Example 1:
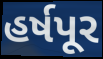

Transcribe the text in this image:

હર્ષપૂર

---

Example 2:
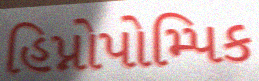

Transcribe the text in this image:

હિપ્નોપોમ્પિક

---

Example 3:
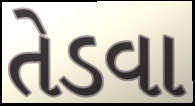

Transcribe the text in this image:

તેડવા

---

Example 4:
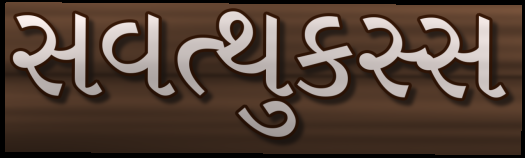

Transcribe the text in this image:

સવત્થુકસ્સ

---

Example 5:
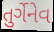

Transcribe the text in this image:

તુર્ગેનેવ